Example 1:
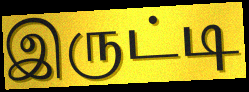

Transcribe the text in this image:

இருட்டி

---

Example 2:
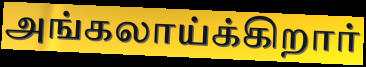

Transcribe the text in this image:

அங்கலாய்க்கிறார்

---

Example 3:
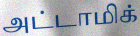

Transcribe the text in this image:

அட்டாமிக்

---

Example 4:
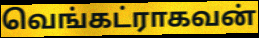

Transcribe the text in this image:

வெங்கட்ராகவன்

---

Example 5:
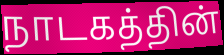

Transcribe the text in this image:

நாடகத்தின்